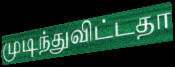
முடிந்துவிட்டதா